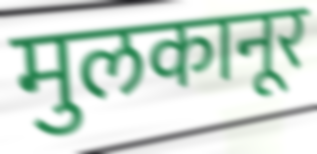
मुलकानूर